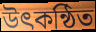
উৎকন্ঠিত